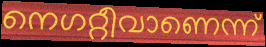
നെഗറ്റീവാണെന്ന്